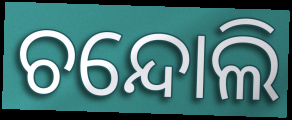
ଚନ୍ଦୋଲି